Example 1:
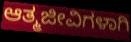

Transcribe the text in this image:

ಆತ್ಮಜೀವಿಗಳಾಗಿ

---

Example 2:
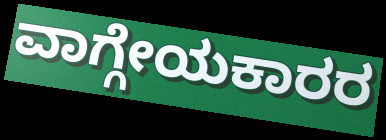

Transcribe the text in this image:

ವಾಗ್ಗೇಯಕಾರರ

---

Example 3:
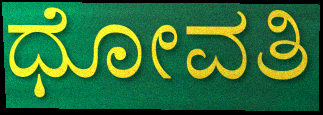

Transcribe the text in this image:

ಧೋವತಿ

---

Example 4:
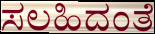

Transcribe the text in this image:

ಸಲಹಿದಂತೆ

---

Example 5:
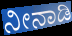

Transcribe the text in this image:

ನೀನಾಡಿ